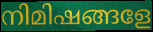
നിമിഷങ്ങളേ